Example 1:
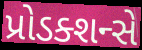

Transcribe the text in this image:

પ્રોડક્શન્સે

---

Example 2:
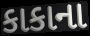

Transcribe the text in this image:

કાકાના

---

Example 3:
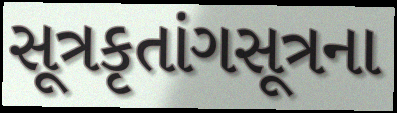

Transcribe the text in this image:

સૂત્રકૃતાંગસૂત્રના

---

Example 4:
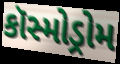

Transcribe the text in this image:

કૉસ્મોડ્રોમ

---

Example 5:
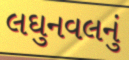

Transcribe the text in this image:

લઘુનવલનું